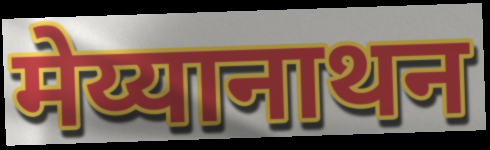
मेय्यानाथन